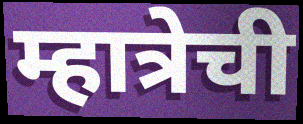
म्हात्रेची